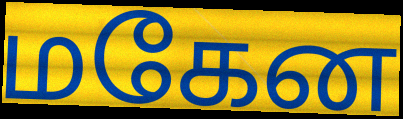
மகேன